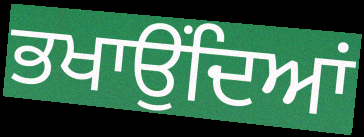
ਭਖਾਉਂਦਿਆਂ